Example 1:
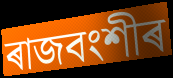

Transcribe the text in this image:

ৰাজবংশীৰ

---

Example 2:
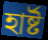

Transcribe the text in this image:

হাৰ্ষ্ট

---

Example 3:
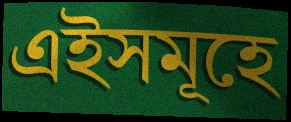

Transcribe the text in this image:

এইসমূহে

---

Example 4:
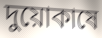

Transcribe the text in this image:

দুয়োকাষে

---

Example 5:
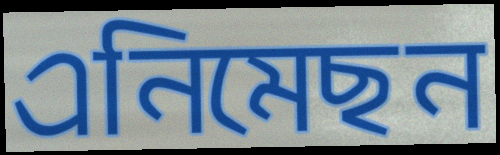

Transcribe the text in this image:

এনিমেছন